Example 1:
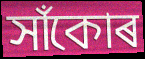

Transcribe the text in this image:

সাঁকোৰ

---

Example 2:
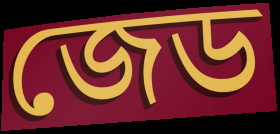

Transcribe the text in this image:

জেড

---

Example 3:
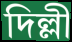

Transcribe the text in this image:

দিল্লী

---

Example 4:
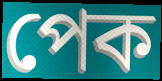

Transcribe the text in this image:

পেক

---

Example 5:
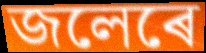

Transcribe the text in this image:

জলেৰে